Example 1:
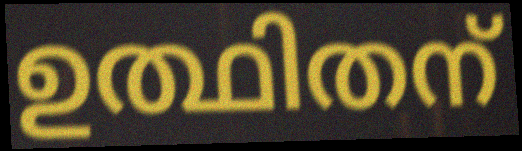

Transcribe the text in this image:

ഉത്ഥിതന്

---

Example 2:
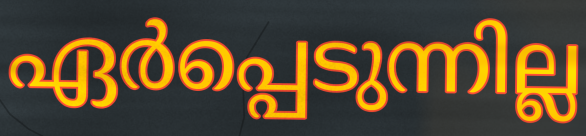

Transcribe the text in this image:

ഏർപ്പെടുന്നില്ല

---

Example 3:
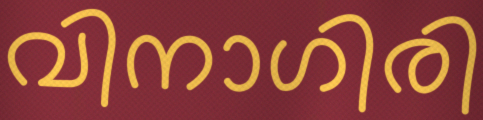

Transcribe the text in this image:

വിനാഗിരി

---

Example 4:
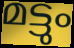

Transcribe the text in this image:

മട്ടും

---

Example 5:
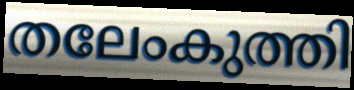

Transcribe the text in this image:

തലേംകുത്തി